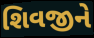
શિવજીને